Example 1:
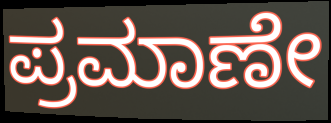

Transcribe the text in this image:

ಪ್ರಮಾಣೇ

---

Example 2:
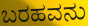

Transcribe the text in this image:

ಬರಹವನು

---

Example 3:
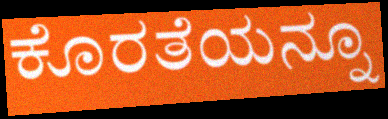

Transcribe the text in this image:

ಕೊರತೆಯನ್ನೂ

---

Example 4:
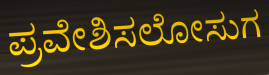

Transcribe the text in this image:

ಪ್ರವೇಶಿಸಲೋಸುಗ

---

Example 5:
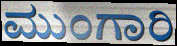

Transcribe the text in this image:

ಮುಂಗಾರಿ